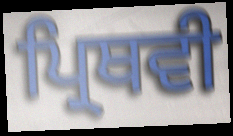
ਪ੍ਰਿਥਵੀ